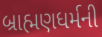
બ્રાહ્મણધર્મની